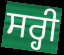
ਸਰ੍ਹੀ